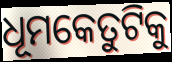
ଧୂମକେତୁଟିକୁ